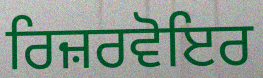
ਰਿਜ਼ਰਵੋਇਰ